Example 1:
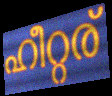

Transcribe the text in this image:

ഹീറ്റര്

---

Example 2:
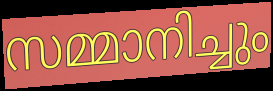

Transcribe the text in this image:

സമ്മാനിച്ചും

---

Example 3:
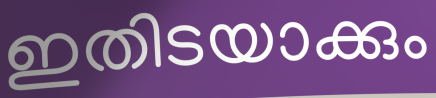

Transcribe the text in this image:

ഇതിടയാക്കും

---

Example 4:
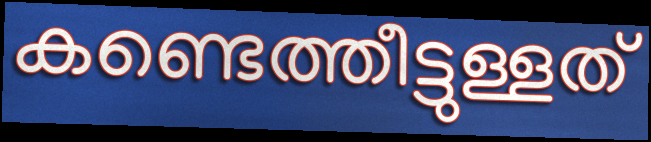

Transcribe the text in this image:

കണ്ടെത്തീട്ടുള്ളത്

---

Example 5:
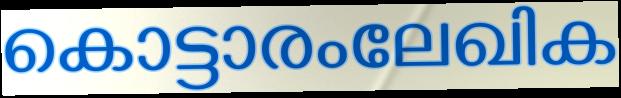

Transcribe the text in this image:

കൊട്ടാരംലേഖിക